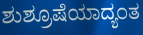
ಶುಶ್ರೂಷೆಯಾದ್ಯಂತ